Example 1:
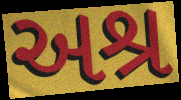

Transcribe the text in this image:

અશ્ર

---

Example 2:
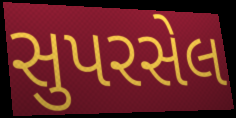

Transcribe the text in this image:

સુપરસેલ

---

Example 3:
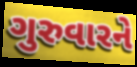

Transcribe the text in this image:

ગુરુવારને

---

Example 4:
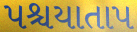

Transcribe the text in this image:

પશ્ચયાતાપ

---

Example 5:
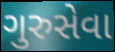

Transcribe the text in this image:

ગુરુસેવા